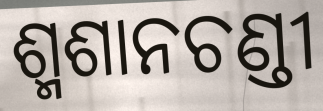
ଶ୍ମଶାନଚଣ୍ଡୀ